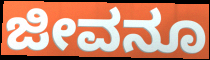
ಜೀವನೂ